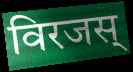
विरजस्